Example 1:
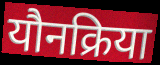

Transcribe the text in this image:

यौनक्रिया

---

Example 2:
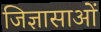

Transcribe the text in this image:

जिज्ञासाओं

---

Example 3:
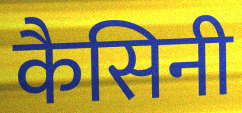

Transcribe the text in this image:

कैसिनी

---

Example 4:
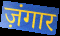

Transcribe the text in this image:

ज़ंगार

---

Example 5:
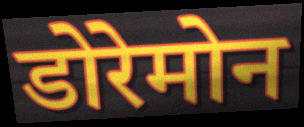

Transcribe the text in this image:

डोरेमोन